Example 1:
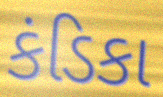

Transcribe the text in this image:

કંડિકા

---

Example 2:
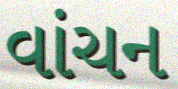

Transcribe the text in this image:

વાંચન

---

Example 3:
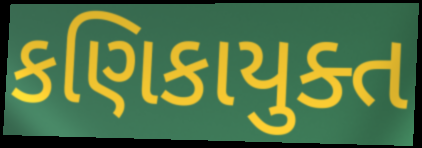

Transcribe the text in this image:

કણિકાયુક્ત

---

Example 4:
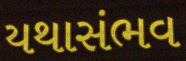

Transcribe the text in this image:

યથાસંભવ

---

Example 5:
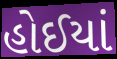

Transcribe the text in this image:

હોઈયાં